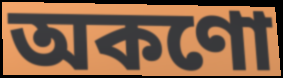
অকণো